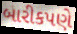
બારીકપણે